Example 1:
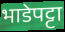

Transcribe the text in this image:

भाडेपट्टा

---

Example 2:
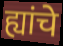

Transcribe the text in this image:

ह्यांचे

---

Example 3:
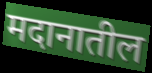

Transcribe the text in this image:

मदानातील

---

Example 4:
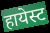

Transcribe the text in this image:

हायेस्ट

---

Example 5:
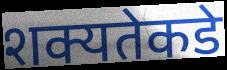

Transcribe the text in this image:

शक्यतेकडे